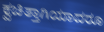
ಕ್ವಚಿತ್ತಾಗಿಯಾದರೂ